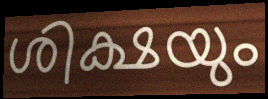
ശിക്ഷയും